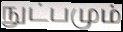
நுட்பமும்